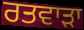
ਰਤਵਾੜਾ